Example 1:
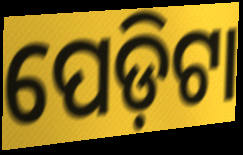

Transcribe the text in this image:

ପେଡ଼ିଟା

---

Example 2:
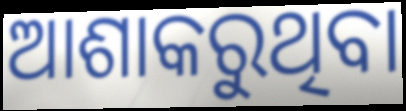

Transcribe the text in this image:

ଆଶାକରୁଥିବା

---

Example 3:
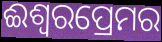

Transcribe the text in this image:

ଈଶ୍ୱରପ୍ରେମର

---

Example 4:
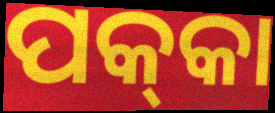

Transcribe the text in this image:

ପକ୍‍କା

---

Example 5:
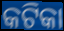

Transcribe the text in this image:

କଟିକା